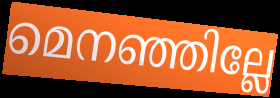
മെനഞ്ഞില്ലേ